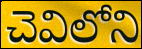
చెవిలోని